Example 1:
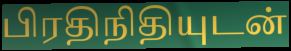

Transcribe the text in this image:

பிரதிநிதியுடன்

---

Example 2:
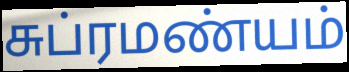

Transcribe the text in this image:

சுப்ரமண்யம்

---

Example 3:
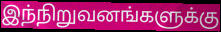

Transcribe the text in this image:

இந்நிறுவனங்களுக்கு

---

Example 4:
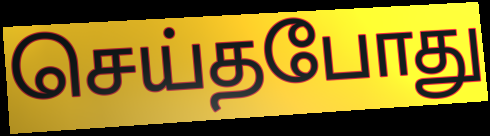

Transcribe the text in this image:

செய்தபோது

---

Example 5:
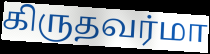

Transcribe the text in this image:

கிருதவர்மா